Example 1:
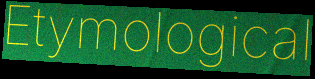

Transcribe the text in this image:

Etymological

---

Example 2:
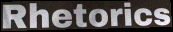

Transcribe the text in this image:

Rhetorics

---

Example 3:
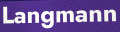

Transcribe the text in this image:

Langmann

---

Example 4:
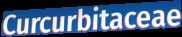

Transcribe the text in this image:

Curcurbitaceae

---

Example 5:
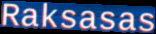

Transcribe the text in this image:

Raksasas